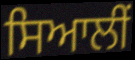
ਸਿਆਲੀਂ